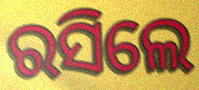
ରସିଲେ